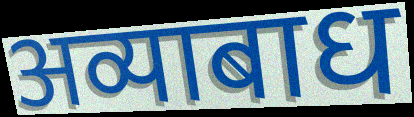
अव्याबाध